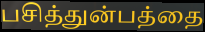
பசித்துன்பத்தை